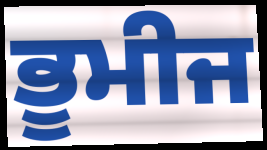
ਭੂਮੀਜ